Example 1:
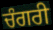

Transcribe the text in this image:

ਚੰਗਰੀ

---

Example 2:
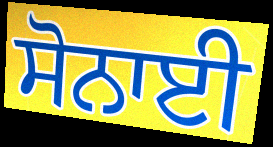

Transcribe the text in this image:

ਸੋਨਾਈ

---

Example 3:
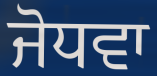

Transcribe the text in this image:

ਜੋਧਵਾ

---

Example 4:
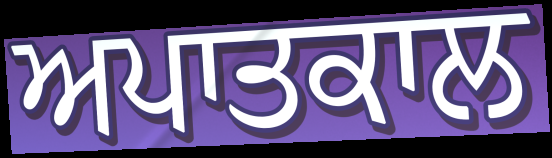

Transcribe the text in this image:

ਅਪਾਤਕਾਲ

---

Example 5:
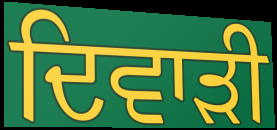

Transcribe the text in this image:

ਦਿਵਾੜੀ